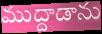
ముద్దాడాను